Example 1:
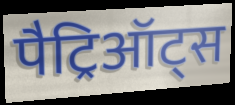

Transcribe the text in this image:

पैट्रिऑट्स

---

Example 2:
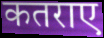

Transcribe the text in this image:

कतराए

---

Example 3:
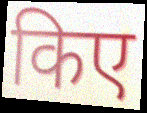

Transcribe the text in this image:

किए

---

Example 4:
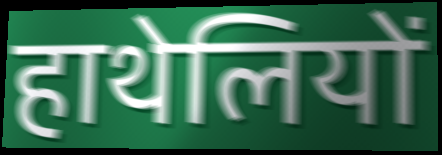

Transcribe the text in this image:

हाथेलियों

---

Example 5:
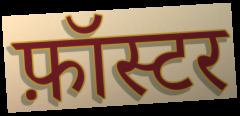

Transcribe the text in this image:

फ़ॉस्टर